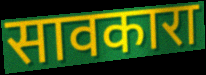
सावकारा